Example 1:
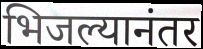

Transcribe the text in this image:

भिजल्यानंतर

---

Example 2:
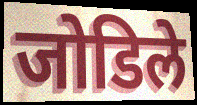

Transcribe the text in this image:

जोडिले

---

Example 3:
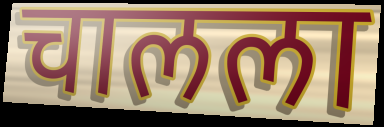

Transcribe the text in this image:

चालला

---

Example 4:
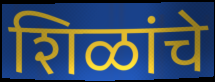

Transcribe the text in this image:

शिळांचे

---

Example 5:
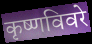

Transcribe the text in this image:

कृष्णविवरे